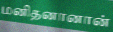
மனிதனானான்